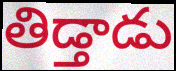
తిడ్తాడు